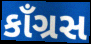
કાઁગ્રસ